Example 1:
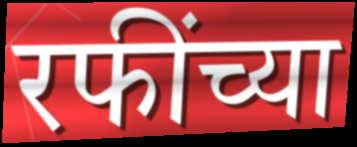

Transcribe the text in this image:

रफींच्या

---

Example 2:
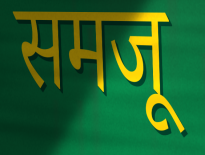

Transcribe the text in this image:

समजू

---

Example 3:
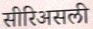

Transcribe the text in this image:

सीरिअसली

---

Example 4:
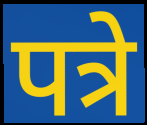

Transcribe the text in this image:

पत्रे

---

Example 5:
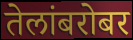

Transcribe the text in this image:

तेलांबरोबर